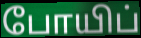
போயிப்